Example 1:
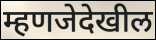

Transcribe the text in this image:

म्हणजेदेखील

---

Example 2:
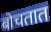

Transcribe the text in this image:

बोचतात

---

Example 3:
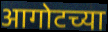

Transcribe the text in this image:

आगोटच्या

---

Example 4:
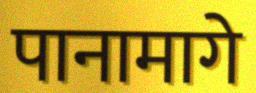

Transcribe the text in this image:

पानामागे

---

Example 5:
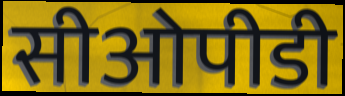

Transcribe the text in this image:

सीओपीडी